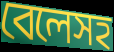
বেলেসহ